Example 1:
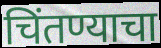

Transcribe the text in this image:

चिंतण्याचा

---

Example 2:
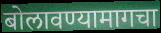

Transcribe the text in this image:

बोलावण्यामागचा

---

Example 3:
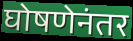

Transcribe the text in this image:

घोषणेनंतर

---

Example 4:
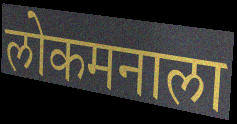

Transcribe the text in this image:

लोकमनाला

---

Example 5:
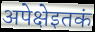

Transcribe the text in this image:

अपेक्षेइतकं